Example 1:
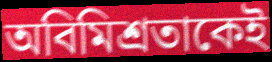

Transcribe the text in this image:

অবিমিশ্রতাকেই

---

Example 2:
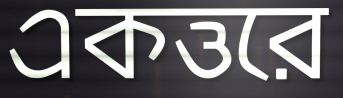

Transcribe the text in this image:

একত্তরে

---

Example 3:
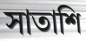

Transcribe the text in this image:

সাতাশি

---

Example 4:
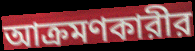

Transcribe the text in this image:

আক্রমণকারীর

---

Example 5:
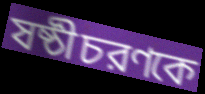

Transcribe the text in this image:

ষষ্ঠীচরণকে